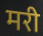
मरी